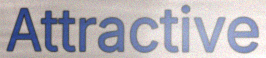
Attractive